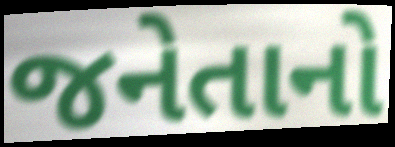
જનેતાનો